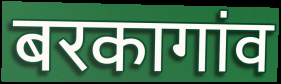
बरकागांव